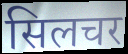
सिलचर